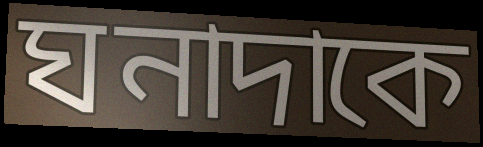
ঘনাদাকে